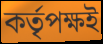
কৰ্তৃপক্ষই